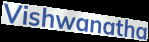
Vishwanatha